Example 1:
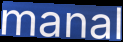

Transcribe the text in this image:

manal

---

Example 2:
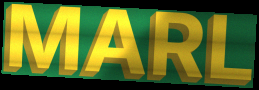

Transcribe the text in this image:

MARL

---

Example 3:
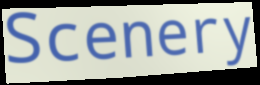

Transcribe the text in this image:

Scenery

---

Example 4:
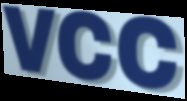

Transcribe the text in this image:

VCC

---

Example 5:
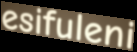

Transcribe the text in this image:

esifuleni